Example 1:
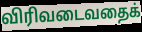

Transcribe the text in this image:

விரிவடைவதைக்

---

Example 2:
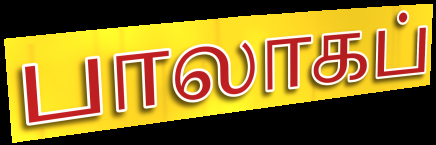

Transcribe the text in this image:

பாலாகப்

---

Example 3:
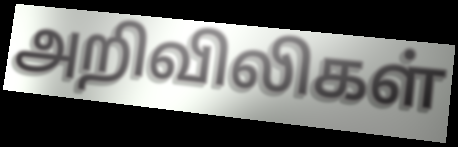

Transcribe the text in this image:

அறிவிலிகள்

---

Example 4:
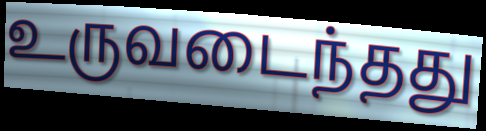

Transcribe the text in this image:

உருவடைந்தது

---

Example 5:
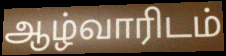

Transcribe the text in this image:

ஆழ்வாரிடம்